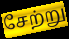
சேற்று